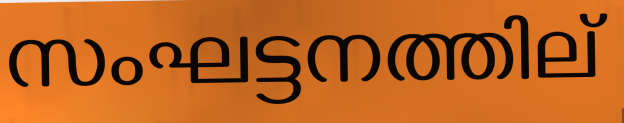
സംഘട്ടനത്തില്